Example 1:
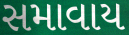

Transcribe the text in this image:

સમાવાય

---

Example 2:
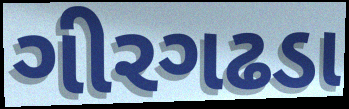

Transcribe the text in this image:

ગીરગઢડા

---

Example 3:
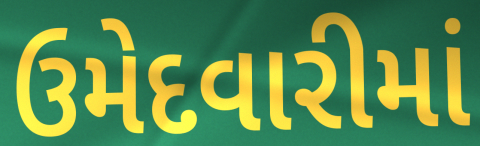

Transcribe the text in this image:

ઉમેદવારીમાં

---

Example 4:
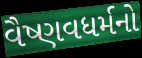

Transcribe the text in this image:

વૈષ્ણવધર્મનો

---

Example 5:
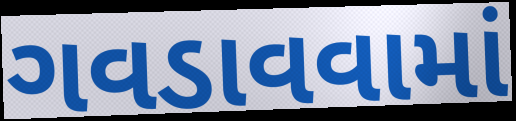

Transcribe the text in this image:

ગવડાવવામાં